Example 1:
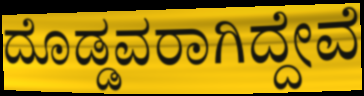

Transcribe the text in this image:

ದೊಡ್ಡವರಾಗಿದ್ದೇವೆ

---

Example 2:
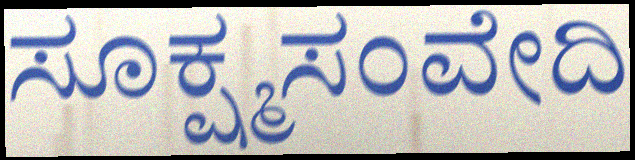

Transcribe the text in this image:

ಸೂಕ್ಷ್ಮಸಂವೇದಿ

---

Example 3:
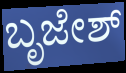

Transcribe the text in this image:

ಬೃಜೇಶ್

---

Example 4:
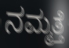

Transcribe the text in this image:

ನಮ್ಮತ್ತೆ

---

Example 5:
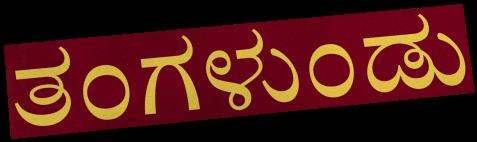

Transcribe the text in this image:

ತಂಗಳುಂಡು